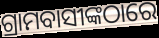
ଗ୍ରାମବାସୀଙ୍କଠାରେ